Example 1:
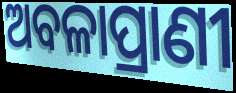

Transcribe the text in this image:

ଅବଳାପ୍ରାଣୀ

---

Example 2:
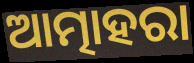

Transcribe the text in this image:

ଆତ୍ମାହରା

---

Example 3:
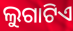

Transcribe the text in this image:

ଲୁଗାଟିଏ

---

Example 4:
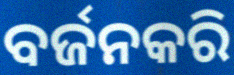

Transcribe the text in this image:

ବର୍ଜନକରି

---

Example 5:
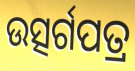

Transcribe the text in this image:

ଉତ୍ସର୍ଗପତ୍ର